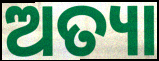
ଅତ୍ୟା